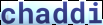
chaddi